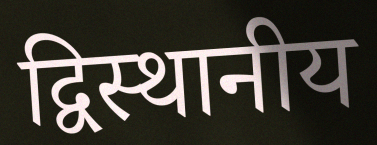
द्विस्थानीय